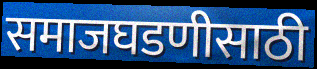
समाजघडणीसाठी